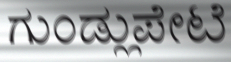
ಗುಂಡ್ಲುಪೇಟೆ